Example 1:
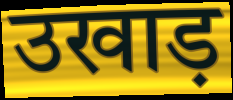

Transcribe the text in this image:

उखाड़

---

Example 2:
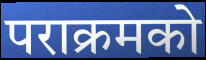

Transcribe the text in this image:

पराक्रमको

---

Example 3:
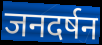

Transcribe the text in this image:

जनदर्षन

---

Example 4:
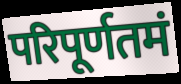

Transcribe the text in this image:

परिपूर्णतमं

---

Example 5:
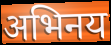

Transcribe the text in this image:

अभिनय